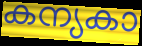
കന്യകാ